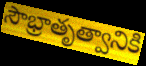
సౌభ్రాతృత్వానికి